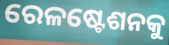
ରେଳଷ୍ଟେଶନକୁ